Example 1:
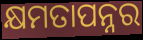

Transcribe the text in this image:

କ୍ଷମତାପନ୍ନର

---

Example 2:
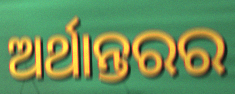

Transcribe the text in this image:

ଅର୍ଥାନ୍ତରର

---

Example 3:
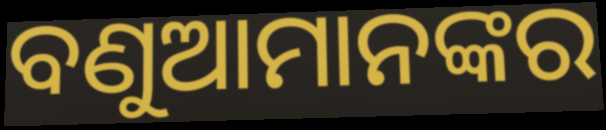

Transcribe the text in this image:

ବଣୁଆମାନଙ୍କର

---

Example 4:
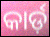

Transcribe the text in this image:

କାର୍ଡ଼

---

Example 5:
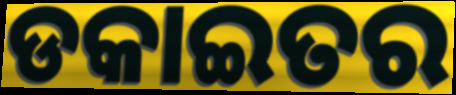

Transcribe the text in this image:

ଡକାଇତର